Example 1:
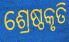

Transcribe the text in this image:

ଶ୍ରେଷ୍ଠକୃତି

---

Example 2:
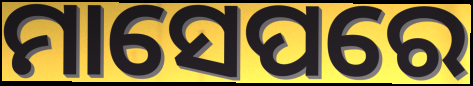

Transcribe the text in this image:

ମାସେପରେ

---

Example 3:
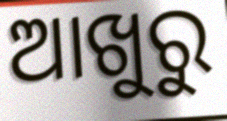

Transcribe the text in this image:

ଆଖୁରୁ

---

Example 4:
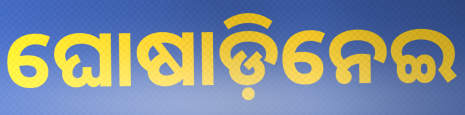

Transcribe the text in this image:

ଘୋଷାଡ଼ିନେଇ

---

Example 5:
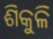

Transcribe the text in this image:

ଶିକୁଳି